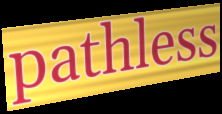
pathless